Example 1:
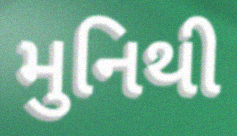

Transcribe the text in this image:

મુનિથી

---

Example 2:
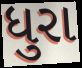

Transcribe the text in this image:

ધુરા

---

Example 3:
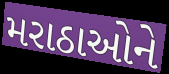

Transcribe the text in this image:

મરાઠાઓને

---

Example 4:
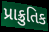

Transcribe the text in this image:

પ્રાક્રુતિક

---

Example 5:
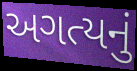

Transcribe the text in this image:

અગત્યનું